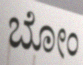
ಬೋಂ